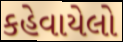
કહેવાયેલો